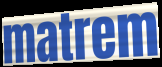
matrem